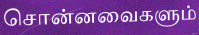
சொன்னவைகளும்